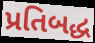
પ્રતિબદ્ધ